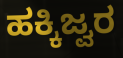
ಹಕ್ಕಿಜ್ವರ